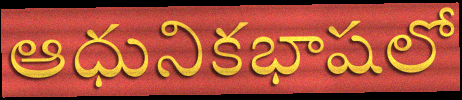
ఆధునికభాషలో